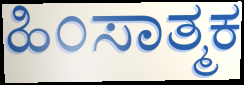
ಹಿಂಸಾತ್ಮಕ